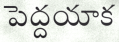
పెద్దయాక